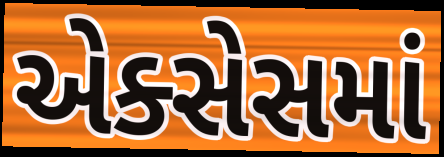
એક્સેસમાં